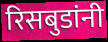
रिसबुडांनी